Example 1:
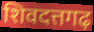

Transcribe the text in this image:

शिवदत्तगढ़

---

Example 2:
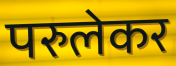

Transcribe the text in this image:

परुलेकर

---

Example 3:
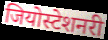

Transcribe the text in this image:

जियोस्टेशनरी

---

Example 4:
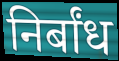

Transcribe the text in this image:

निर्बांध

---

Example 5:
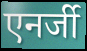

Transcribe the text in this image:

एनर्जी